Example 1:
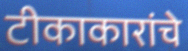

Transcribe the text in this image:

टीकाकारांचे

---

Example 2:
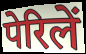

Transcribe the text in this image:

पेरिलें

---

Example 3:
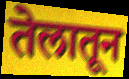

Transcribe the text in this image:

तेलातून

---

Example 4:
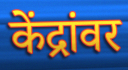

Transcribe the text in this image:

केंद्रांवर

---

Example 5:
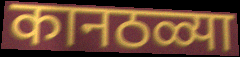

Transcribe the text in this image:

कानठळ्या